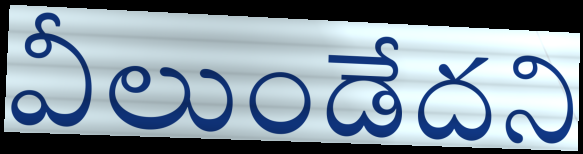
వీలుండేదని